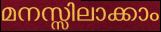
മനസ്സിലാക്കാം